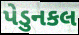
પેડુનકલ